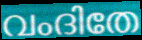
വംദിതേ